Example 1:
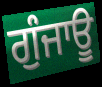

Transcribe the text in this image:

ਗੁੰਜਾਊ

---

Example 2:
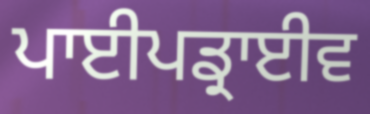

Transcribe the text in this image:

ਪਾਈਪਡ੍ਰਾਈਵ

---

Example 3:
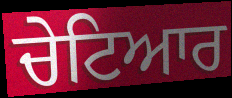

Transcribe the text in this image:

ਚੇਟਿਆਰ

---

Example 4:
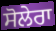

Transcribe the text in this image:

ਸੋਲੇਰਾ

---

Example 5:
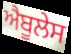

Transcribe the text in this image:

ਐਬੂਲੇਸ